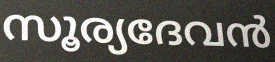
സൂര്യദേവൻ